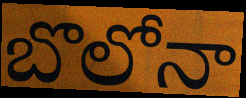
బొలోనా